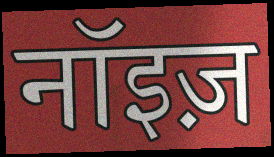
नॉइज़